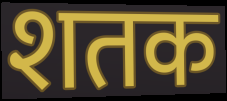
शतक